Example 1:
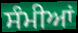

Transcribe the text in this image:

ਸੰਮੀਆਂ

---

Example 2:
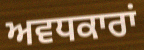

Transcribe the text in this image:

ਅਵਧਕਾਰਾਂ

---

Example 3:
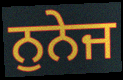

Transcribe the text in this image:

ਨੁਨੇਜ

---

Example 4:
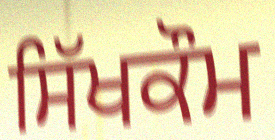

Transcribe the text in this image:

ਸਿੱਖਕੌਮ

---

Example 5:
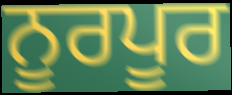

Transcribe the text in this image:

ਨੂਰਪੂਰ